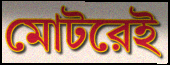
মোটরেই